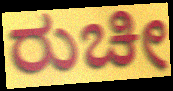
ರುಚೀ